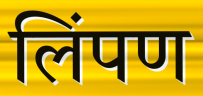
लिंपण